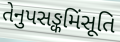
તેનુપસઙ્કમિંસૂતિ